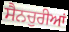
ਸੈਨਚੁਰੀਆਂ